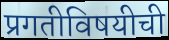
प्रगतीविषयीची